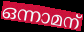
ഒന്നാമന്